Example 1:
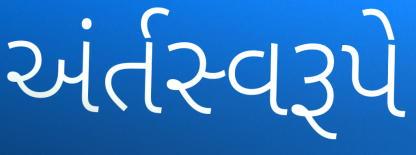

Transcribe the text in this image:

અંર્તસ્વરૂપે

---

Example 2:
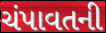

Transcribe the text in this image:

ચંપાવતની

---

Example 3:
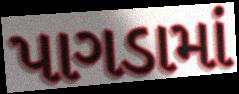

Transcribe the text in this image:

પાગડામાં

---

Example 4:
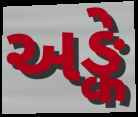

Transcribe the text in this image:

અઙ્કે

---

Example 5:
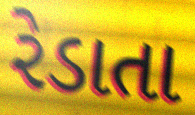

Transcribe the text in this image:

રેડાતા